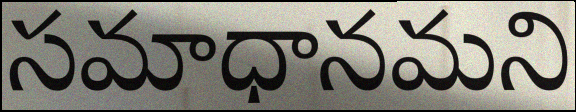
సమాధానమని